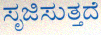
ಸೃಜಿಸುತ್ತದೆ